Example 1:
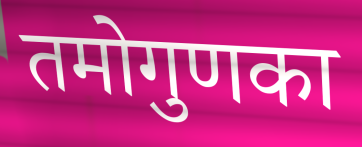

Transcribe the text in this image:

तमोगुणका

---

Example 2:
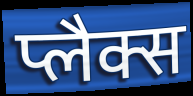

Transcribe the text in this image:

प्लैक्स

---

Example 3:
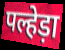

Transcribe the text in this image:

पल्हेड़ा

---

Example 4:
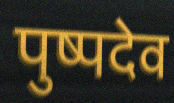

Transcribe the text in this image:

पुष्पदेव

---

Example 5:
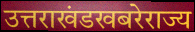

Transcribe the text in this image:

उत्तराखंडखबरेराज्य